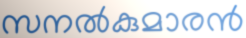
സനൽകുമാരൻ